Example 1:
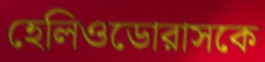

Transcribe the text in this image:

হেলিওডোরাসকে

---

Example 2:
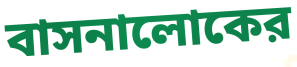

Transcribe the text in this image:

বাসনালোকের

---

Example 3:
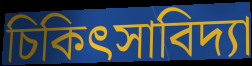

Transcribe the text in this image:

চিকিৎসাবিদ্যা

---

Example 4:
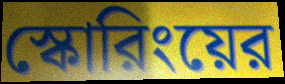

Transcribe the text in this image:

স্কোরিংয়ের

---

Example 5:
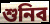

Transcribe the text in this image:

শুনিব